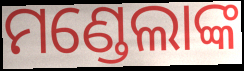
ମଣ୍ଡେଲାଙ୍କ